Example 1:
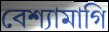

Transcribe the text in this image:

বেশ্যামাগি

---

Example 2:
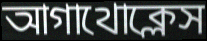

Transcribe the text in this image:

আগাথোক্লেস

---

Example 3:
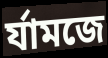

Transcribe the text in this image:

র্যামজে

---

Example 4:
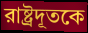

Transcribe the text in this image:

রাষ্ট্রদূতকে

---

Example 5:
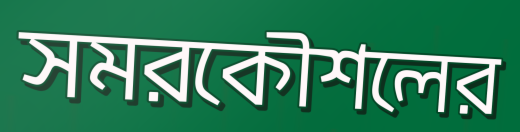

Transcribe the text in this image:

সমরকৌশলের